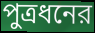
পুত্রধনের